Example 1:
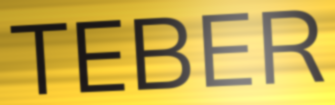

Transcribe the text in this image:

TEBER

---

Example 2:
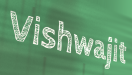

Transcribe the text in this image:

Vishwajit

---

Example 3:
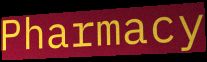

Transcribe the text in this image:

Pharmacy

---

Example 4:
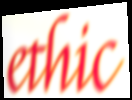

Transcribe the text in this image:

ethic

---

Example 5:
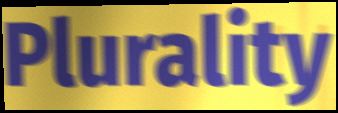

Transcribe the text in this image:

Plurality